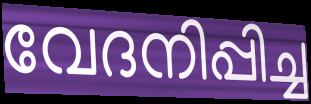
വേദനിപ്പിച്ച